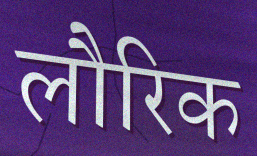
लौरिक